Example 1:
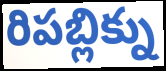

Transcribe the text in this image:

రిపబ్లిక్ను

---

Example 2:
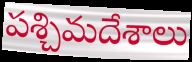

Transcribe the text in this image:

పశ్చిమదేశాలు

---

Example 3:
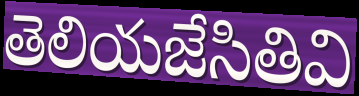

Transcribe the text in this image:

తెలియజేసితివి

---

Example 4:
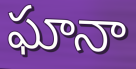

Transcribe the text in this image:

ఘానా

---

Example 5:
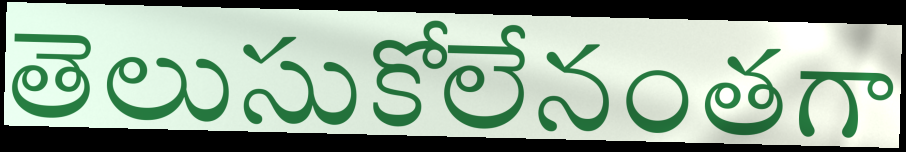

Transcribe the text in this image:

తెలుసుకోలేనంతగా